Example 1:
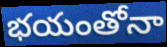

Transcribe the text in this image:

భయంతోనా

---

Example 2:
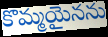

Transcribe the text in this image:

కొమ్మయైనను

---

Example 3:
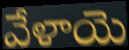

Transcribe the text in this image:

వేళాయె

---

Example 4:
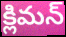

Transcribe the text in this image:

క్లిమన్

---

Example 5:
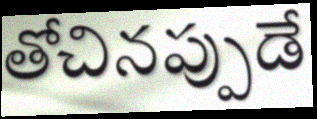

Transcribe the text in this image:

తోచినప్పుడే